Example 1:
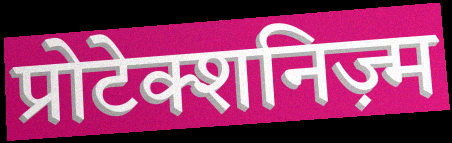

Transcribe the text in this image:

प्रोटेक्शनिज़्म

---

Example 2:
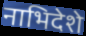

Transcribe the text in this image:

नाभिदेशे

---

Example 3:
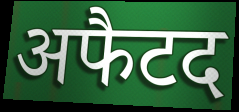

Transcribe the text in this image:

अफैटद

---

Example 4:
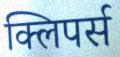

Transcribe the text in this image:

क्लिपर्स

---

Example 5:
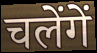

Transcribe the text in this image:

चलेंगें